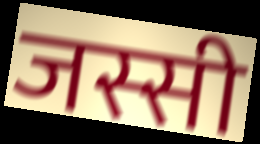
जस्सी